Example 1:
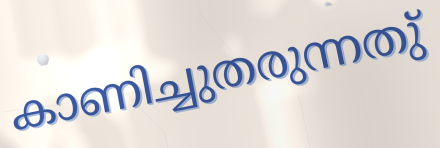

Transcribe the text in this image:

കാണിച്ചുതരുന്നതു്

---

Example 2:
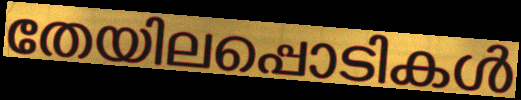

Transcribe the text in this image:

തേയിലപ്പൊടികൾ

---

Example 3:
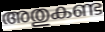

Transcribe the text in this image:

അതുകണ്ട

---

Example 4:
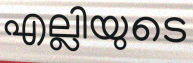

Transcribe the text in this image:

എല്ലിയുടെ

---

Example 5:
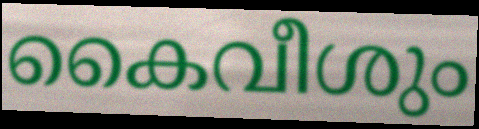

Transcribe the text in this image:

കൈവീശും